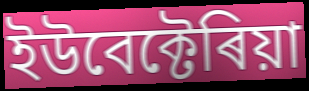
ইউবেক্টেৰিয়া